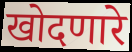
खोदणारे